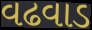
વઢવાડ